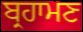
ਬ੍ਰਹਾਮਣ